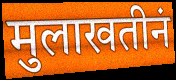
मुलाखतीनं